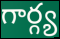
గార్గ్య